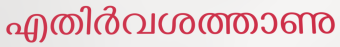
എതിർവശത്താണു